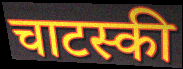
चाटस्की